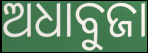
ଅଧାବୁଜା